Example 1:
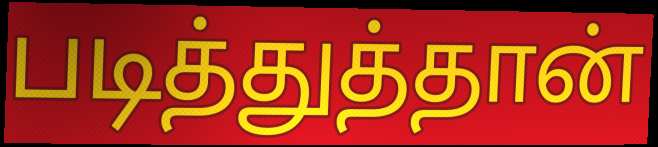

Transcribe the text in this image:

படித்துத்தான்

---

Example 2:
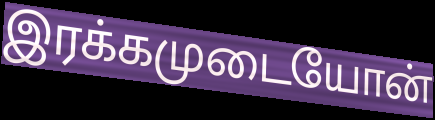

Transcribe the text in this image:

இரக்கமுடையோன்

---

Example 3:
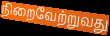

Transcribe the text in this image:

நிறைவேற்றுவது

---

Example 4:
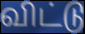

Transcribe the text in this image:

விட்டு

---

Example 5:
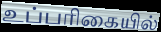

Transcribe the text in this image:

உப்பரிகையில்